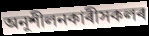
অনুশীলনকাৰীসকলৰ